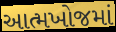
આત્મખોજમાં